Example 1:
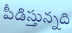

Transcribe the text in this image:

పీడిస్తున్నది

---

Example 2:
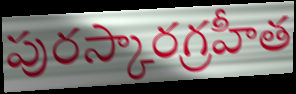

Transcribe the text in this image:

పురస్కారగ్రహీత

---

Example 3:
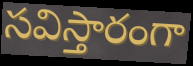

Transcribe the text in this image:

సవిస్తారంగా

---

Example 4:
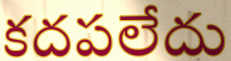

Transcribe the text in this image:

కదపలేదు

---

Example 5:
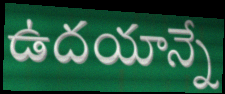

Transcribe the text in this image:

ఉదయాన్నే